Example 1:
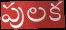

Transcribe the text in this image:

పులక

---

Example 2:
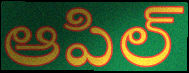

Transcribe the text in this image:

ఆపిల్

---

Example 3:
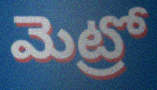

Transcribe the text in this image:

మెట్రో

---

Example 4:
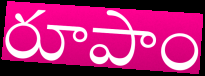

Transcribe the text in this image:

రూపాం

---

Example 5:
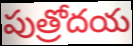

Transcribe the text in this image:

పుత్రోదయ